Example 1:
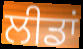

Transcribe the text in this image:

ਲੀਡਾਂ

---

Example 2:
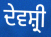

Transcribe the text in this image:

ਦੇਵਸ਼੍ਰੀ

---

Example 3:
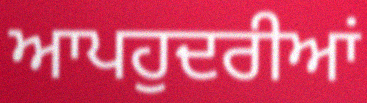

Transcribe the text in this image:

ਆਪਹੁਦਰੀਆਂ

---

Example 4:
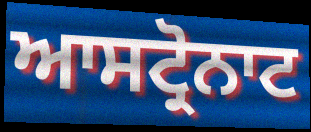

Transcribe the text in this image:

ਆਸਟ੍ਰੋਨਾਟ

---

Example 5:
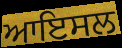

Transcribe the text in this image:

ਆਇਸਲ